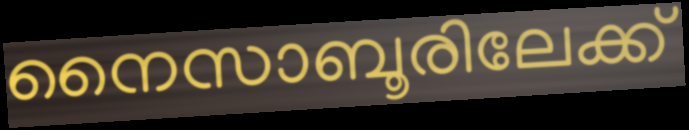
നൈസാബൂരിലേക്ക്